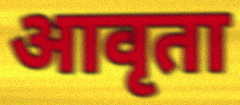
आवृता